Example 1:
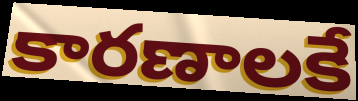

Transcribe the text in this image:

కారణాలకే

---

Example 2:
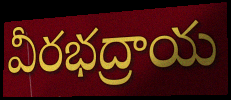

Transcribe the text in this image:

వీరభద్రాయ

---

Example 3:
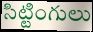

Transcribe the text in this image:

సిట్టింగులు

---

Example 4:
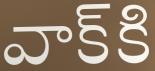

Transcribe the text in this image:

వాక్‌కి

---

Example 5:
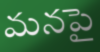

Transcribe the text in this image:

మనపై